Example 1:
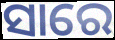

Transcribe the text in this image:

ସାରେ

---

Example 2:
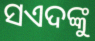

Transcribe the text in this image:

ସଏଦଙ୍କୁ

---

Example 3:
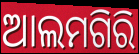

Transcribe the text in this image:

ଆଲମଗିରି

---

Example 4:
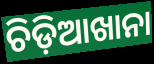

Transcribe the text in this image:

ଚିଡ଼ିଆଖାନା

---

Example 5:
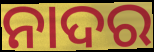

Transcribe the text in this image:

ନାଦର